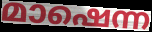
മാഷെന്ന